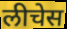
लीचेस